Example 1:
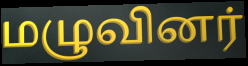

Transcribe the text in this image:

மழுவினர்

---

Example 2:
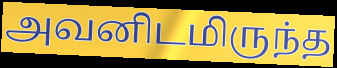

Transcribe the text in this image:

அவனிடமிருந்த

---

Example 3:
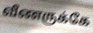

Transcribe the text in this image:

வீணருக்கே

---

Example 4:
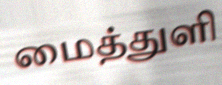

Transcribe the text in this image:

மைத்துளி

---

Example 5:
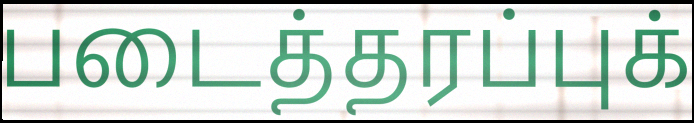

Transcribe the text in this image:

படைத்தரப்புக்